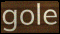
gole